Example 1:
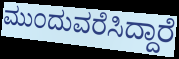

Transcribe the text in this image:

ಮುಂದುವರೆಸಿದ್ದಾರೆ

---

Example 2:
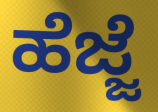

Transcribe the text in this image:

ಹೆಜ್ಜೆ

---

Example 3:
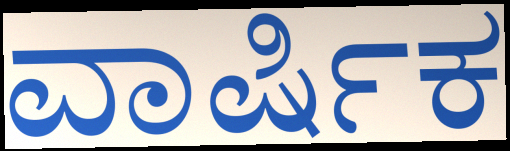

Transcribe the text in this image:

ವಾರ್ಷಿಕ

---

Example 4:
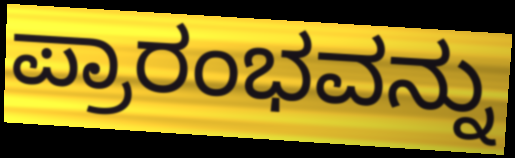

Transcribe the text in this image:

ಪ್ರಾರಂಭವನ್ನು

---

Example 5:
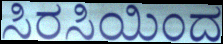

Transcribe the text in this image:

ಸಿರಸಿಯಿಂದ